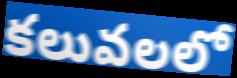
కలువలలో